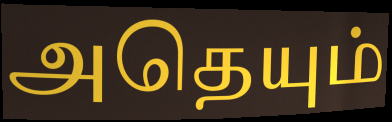
அதெயும்